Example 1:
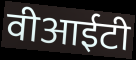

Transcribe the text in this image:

वीआईटी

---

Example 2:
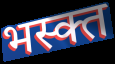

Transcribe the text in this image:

भस्क्त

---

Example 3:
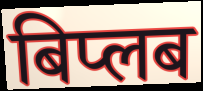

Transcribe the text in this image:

बिप्लब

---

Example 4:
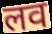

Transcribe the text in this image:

लव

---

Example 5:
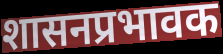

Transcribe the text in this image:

शासनप्रभावक